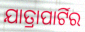
ଯାତ୍ରାପାର୍ଟିର